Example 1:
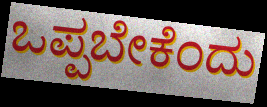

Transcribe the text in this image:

ಒಪ್ಪಬೇಕೆಂದು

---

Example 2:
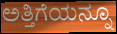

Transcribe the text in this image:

ಅತ್ತಿಗೆಯನ್ನೂ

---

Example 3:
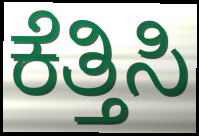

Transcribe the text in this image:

ಕೆತ್ತಿಸಿ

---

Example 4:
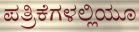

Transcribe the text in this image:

ಪತ್ರಿಕೆಗಳಲ್ಲಿಯೂ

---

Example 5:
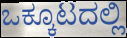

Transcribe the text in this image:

ಒಕ್ಕೂಟದಲ್ಲಿ